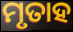
ମୃତାହ